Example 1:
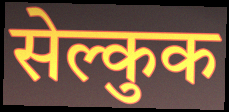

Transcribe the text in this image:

सेल्कुक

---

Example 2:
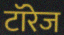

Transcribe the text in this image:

टॉरेज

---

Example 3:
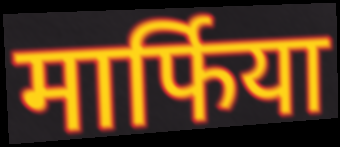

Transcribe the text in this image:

मार्फिया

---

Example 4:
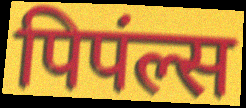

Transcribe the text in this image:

पिपंल्स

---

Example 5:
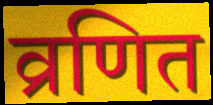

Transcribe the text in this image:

व्रणित